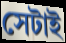
সেটাই